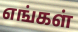
எங்கள்